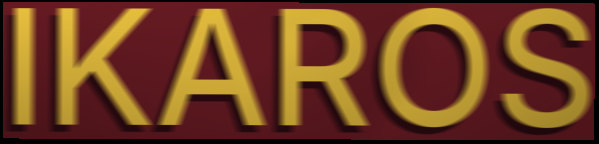
IKAROS